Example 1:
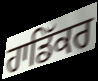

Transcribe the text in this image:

ਹਾਡਿੱਕਰ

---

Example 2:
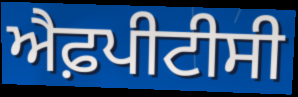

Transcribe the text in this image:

ਐਫ਼ਪੀਟੀਸੀ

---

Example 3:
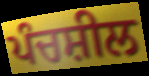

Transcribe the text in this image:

ਪੰਚਸ਼ੀਲ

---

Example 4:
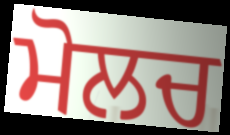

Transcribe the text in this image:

ਮੋਲਚ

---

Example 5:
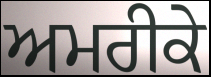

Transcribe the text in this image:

ਅਮਰੀਕੇ